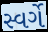
સ્વર્ગે